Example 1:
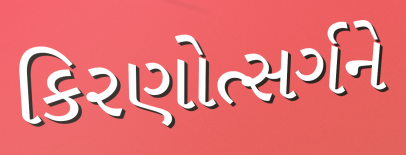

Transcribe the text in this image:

કિરણોત્સર્ગને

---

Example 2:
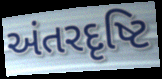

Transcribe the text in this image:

અંતરદૃષ્ટિ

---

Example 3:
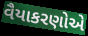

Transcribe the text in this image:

વૈયાકરણોએ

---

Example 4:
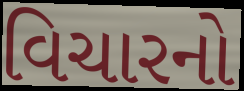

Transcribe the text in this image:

વિચારનો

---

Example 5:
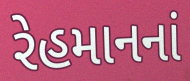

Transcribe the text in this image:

રેહમાનનાં